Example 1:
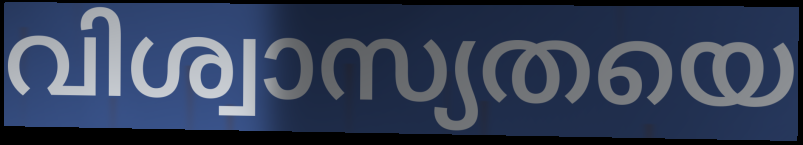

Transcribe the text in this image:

വിശ്വാസ്യതയെ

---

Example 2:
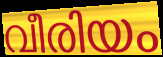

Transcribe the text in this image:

വീരിയം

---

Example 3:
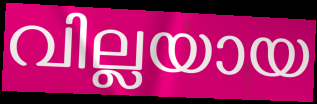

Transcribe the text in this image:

വില്ലയായ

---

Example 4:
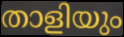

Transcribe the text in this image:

താളിയും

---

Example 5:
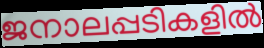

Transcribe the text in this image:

ജനാലപ്പടികളിൽ